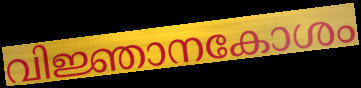
വിജ്ഞാനകോശം